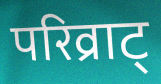
परिव्राट्